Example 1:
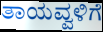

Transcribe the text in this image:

ತಾಯವ್ವಳಿಗೆ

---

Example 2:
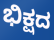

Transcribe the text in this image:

ಭಿಕ್ಷದ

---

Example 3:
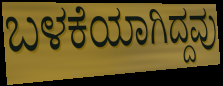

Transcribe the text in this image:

ಬಳಕೆಯಾಗಿದ್ದವು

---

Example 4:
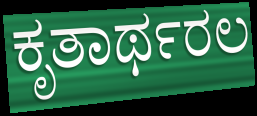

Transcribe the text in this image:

ಕೃತಾರ್ಥರಲ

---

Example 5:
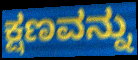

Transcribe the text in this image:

ಕ್ಷಣವನ್ನು